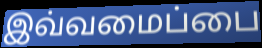
இவ்வமைப்பை